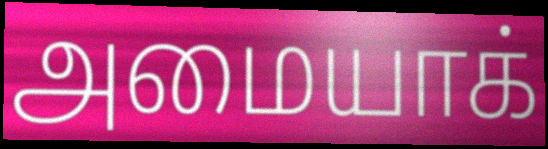
அமையாக்